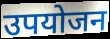
उपयोजन